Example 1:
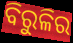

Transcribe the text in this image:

ବିରୁଳିର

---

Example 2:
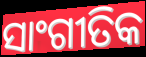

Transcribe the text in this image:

ସାଂଗୀତିକ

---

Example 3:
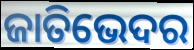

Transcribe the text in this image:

ଜାତିଭେଦର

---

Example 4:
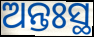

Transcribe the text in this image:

ଅନ୍ତଃସ୍ଥ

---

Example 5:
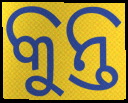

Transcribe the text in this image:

କୁନ୍ତ